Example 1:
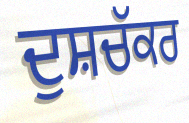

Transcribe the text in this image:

ਦੁਸ਼ਚੱਕਰ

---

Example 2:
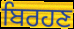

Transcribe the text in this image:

ਬਿਰਹਣ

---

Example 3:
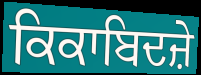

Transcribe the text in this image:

ਕਿਕਾਬਿਦਜ਼ੇ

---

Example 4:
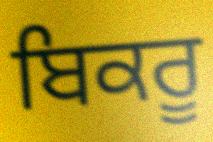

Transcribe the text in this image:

ਬਿਕਰੂ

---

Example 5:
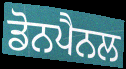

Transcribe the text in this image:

ਡੋਨਪੈਨਲ